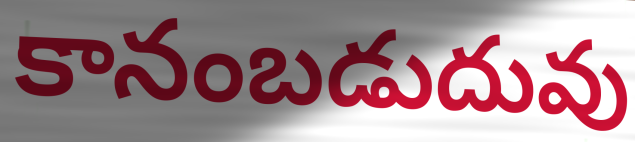
కానంబడుదువు